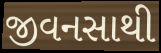
જીવનસાથી